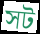
সট